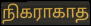
நிகராகாத